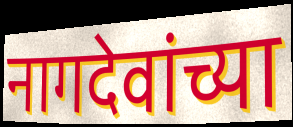
नागदेवांच्या